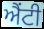
ਐਂਟੀ